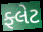
ફ્લેટ